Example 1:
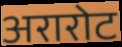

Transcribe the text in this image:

अरारोट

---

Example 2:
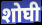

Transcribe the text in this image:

शोघी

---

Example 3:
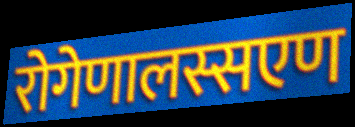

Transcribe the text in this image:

रोगेणालस्सएण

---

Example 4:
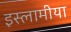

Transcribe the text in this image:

इस्लामीया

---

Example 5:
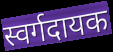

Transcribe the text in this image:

स्वर्गदायक